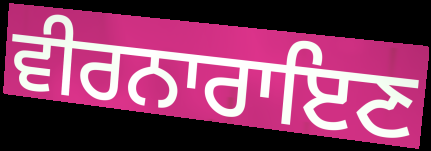
ਵੀਰਨਾਰਾਇਣ